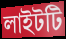
লাইটটি